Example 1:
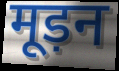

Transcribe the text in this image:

मूड़न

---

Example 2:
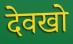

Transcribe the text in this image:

देवखो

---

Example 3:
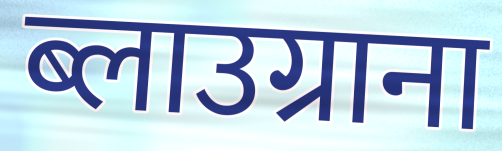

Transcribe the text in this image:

ब्लाउग्राना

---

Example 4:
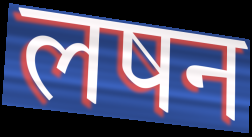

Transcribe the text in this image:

लषन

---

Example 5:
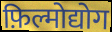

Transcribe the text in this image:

फ़िल्मोद्योग